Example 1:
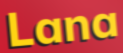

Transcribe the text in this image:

Lana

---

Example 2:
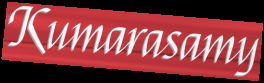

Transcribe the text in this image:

Kumarasamy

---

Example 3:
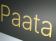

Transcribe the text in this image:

Paata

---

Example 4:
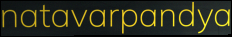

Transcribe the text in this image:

natavarpandya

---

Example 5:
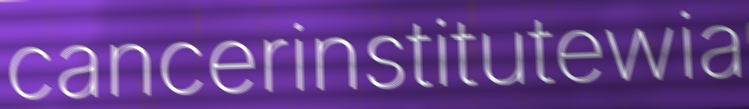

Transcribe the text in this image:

cancerinstitutewia